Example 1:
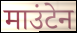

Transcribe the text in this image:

माउंटेन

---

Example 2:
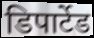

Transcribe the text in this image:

डिपार्टेड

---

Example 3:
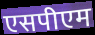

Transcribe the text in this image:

एसपीएम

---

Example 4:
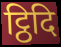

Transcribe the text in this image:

ट्ठिदि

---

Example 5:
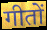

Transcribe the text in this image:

गीतों